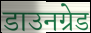
डाउनग्रेड